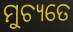
ମୁଚ୍ୟତେ